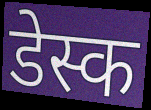
डेस्क